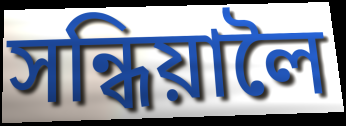
সন্ধিয়ালৈ